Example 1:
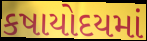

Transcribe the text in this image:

કષાયોદયમાં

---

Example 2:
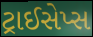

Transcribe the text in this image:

ટ્રાઈસેપ્સ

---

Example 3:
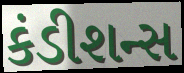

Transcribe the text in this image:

કંડીશન્સ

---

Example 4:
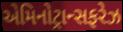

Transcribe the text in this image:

એમિનોટ્રાન્સફરેઝ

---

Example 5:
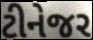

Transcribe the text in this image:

ટીનેજર